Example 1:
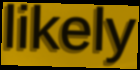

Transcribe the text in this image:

likely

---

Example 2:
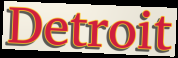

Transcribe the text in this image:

Detroit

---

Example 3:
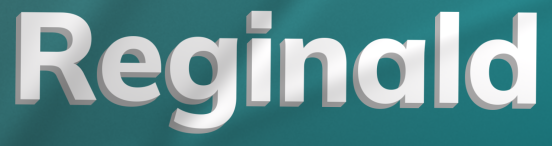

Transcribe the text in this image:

Reginald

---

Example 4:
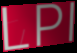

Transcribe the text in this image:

LPI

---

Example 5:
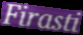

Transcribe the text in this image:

Firasti